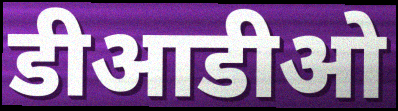
डीआडीओ